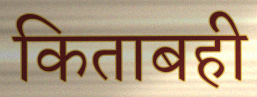
किताबही